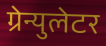
ग्रेन्युलेटर